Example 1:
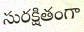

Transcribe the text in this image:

సురక్షితంగా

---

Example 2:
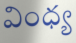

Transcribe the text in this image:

వింధ్య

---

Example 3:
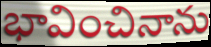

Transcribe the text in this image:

భావించినాను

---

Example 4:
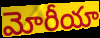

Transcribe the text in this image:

మోరీయా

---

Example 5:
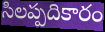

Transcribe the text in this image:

సిలప్పదికారం